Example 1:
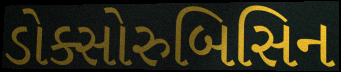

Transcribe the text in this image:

ડોક્સોરુબિસિન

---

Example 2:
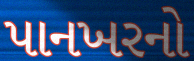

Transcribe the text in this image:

પાનખરનો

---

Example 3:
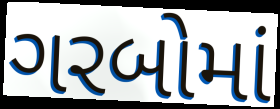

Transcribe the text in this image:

ગરબોમાં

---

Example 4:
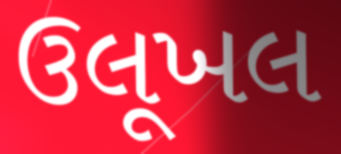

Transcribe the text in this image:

ઉલૂખલ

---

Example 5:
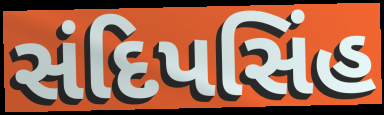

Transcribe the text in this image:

સંદિપસિંહ